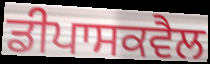
ਡੀਪਾਸਕਵੈਲ